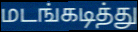
மடங்கடித்து